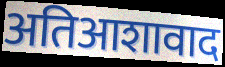
अतिआशावाद